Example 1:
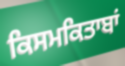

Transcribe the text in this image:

ਕਿਸਮਕਿਤਾਬਾਂ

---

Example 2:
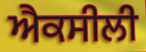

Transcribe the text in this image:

ਐਕਸੀਲੀ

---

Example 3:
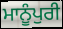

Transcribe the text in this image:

ਮਾਨੂੰਪੁਰੀ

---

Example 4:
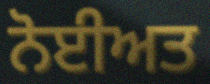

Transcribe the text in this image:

ਨੋਈਅਤ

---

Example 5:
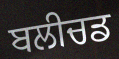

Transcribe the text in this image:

ਬਲੀਚਡ